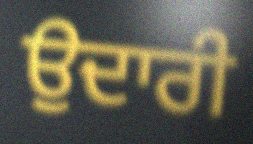
ਉਦਾਰੀ